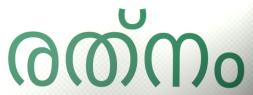
രത്‌നം